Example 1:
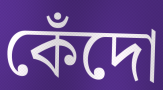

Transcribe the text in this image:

কেঁদো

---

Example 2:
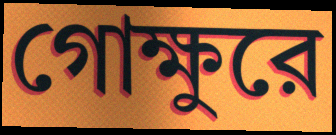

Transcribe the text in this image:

গোক্ষুরে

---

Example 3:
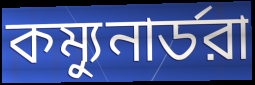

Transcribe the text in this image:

কম্যুনার্ডরা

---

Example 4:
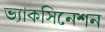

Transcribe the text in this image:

ভ্যাকসিনেশন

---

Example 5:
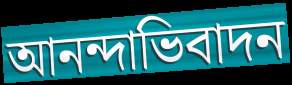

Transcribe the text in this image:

আনন্দাভিবাদন